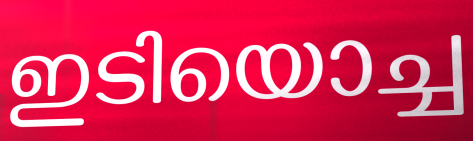
ഇടിയൊച്ച